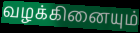
வழக்கினையும்